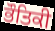
ਭੌਤਿਕੀ